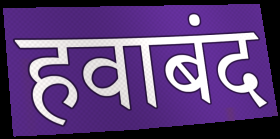
हवाबंद